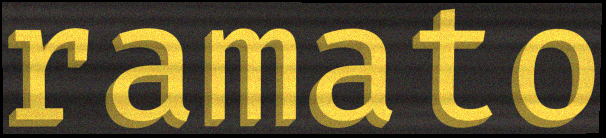
ramato